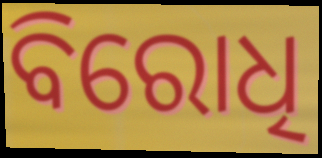
ବିରୋଧି